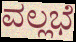
ವಲ್ಲಭೆ